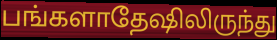
பங்களாதேஷிலிருந்து